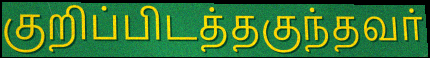
குறிப்பிடத்தகுந்தவர்